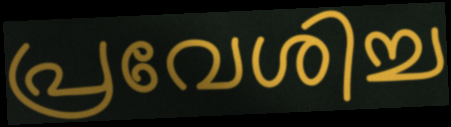
പ്രവേശിച്ച